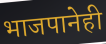
भाजपानेही